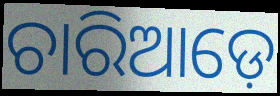
ଚାରିଆଡ଼େ